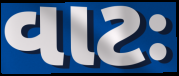
વાટઃ